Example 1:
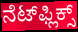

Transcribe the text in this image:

ನೆಟ್‌ಫ್ಲಿಕ್ಸ್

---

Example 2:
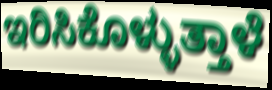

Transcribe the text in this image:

ಇರಿಸಿಕೊಳ್ಳುತ್ತಾಳೆ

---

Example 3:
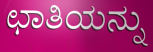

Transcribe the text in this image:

ಛಾತಿಯನ್ನು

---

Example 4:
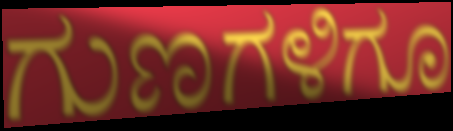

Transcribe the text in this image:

ಗುಣಗಳಿಗೂ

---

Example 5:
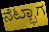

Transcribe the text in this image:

ನೆಟ್ಟಾಗ